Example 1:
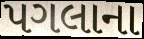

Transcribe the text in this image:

પગલાના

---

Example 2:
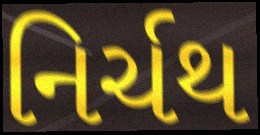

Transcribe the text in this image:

નિર્ચથ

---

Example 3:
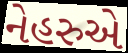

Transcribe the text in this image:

નેહરુએ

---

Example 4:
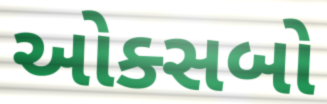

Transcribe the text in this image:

ઓક્સબો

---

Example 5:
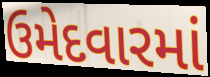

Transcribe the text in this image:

ઉમેદવારમાં